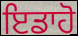
ਇਡਾਹੋ